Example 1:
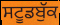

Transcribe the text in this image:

ਸਟੂਡਬੁੱਕ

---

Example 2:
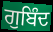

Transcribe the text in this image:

ਗੁਬਿੰਦ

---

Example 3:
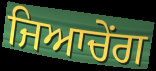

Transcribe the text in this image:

ਜਿਆਚੇਂਗ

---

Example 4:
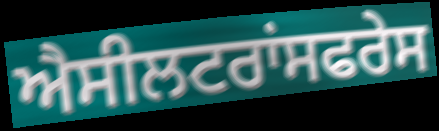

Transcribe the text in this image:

ਐਸੀਲਟਰਾਂਸਫਰੇਸ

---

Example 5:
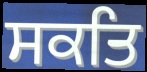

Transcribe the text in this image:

ਸਕਤਿ